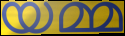
യമ്മ